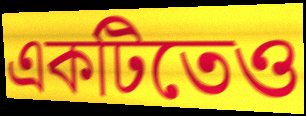
একটিতেও